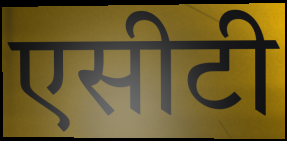
एसीटी